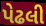
પેઢલી